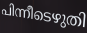
പിന്നീടെഴുതി